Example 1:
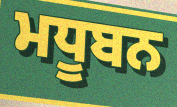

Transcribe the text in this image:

ਮਧੂਬਨ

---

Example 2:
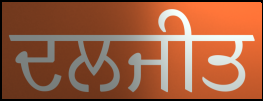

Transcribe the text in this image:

ਦਲਜੀਤ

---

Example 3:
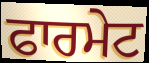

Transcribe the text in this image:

ਫਾਰਮੇਟ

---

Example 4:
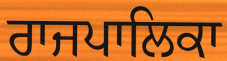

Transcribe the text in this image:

ਰਾਜਪਾਲਿਕਾ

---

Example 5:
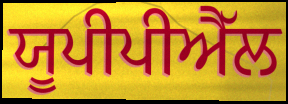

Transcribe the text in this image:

ਯੂਪੀਪੀਐੱਲ